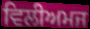
ਵਿਲੀਅਮਜ